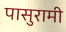
पासुरामी